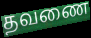
தவணை